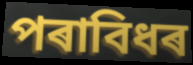
পৰাবিধৰ